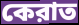
কেরাত